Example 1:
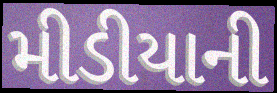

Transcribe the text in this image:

મીડીયાની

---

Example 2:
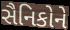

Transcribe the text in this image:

સૈનિકોને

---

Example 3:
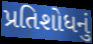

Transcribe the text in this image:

પ્રતિશોધનું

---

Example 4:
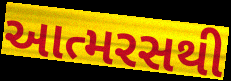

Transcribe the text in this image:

આત્મરસથી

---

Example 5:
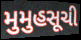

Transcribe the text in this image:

મુમુહસૂચી